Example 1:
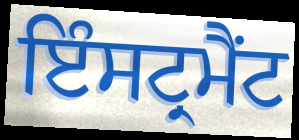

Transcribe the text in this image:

ਇੰਸਟ੍ਰਮੈਂਟ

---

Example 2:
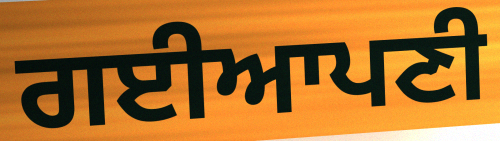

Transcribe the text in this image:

ਗਈਆਪਣੀ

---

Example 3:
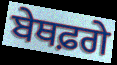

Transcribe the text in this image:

ਬੇਥਫ਼ਗੇ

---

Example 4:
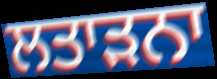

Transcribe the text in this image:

ਲਤਾੜਨਾ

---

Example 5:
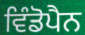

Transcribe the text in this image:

ਵਿੰਡੋਪੈਨ